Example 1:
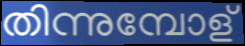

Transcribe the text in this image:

തിന്നുമ്പോള്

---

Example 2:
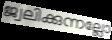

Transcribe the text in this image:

ജ്വലിക്കുന്നല്ലോ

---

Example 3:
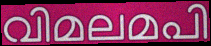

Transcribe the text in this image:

വിമലമപി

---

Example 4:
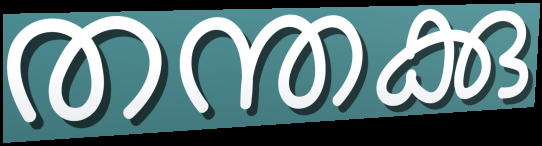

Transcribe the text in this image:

തന്തക്കു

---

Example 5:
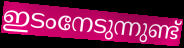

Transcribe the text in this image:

ഇടംനേടുന്നുണ്ട്